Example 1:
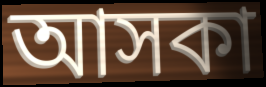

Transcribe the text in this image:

আসকা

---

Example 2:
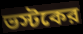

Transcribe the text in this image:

ভস্টকের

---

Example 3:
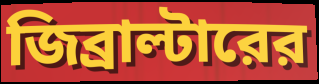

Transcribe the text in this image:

জিব্রাল্টারের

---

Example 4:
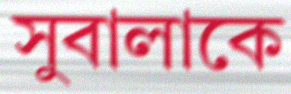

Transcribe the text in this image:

সুবালাকে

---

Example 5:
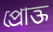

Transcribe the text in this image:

প্রোক্ত